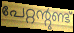
പേറ്റന്റുണ്ട്